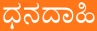
ಧನದಾಹಿ